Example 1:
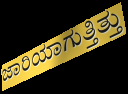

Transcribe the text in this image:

ಜಾರಿಯಾಗುತ್ತಿತ್ತು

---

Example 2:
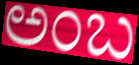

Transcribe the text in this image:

ಅಂಬ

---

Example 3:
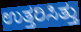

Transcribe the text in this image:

ಉತ್ತರಿಸಿತ್ತು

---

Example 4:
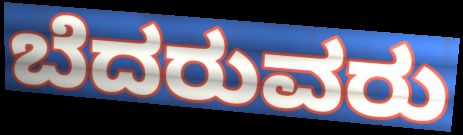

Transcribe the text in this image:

ಬೆದರುವರು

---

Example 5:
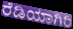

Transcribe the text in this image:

ರೆಡಿಯಾಗಿರಿ